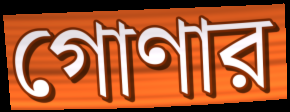
গোণার